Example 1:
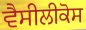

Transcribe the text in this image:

ਵੈਸੀਲੀਕੋਸ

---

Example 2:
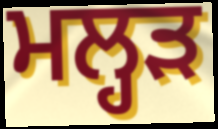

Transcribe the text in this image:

ਮਲ੍ਹੜ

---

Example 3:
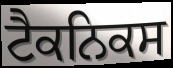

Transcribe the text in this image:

ਟੈਕਨਿਕਸ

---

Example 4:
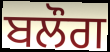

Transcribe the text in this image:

ਬਲੌਗ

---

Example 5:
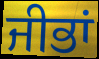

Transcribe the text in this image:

ਜੀਭਾਂ